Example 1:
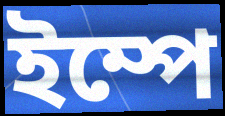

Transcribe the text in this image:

ইম্পে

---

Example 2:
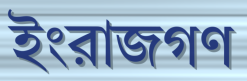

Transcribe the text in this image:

ইংরাজগণ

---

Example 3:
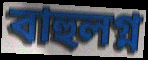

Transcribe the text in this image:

বাহুলগ্ন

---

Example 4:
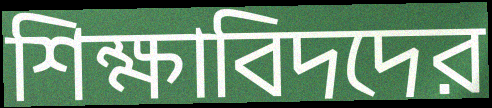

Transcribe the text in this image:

শিক্ষাবিদদের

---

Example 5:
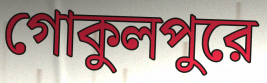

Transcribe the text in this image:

গোকুলপুরে